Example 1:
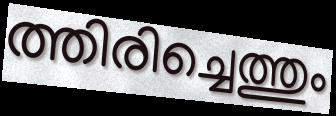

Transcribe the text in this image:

ത്തിരിച്ചെത്തും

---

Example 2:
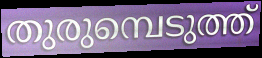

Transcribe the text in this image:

തുരുമ്പെടുത്ത്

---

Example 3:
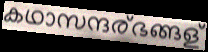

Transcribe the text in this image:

കഥാസന്ദര്ഭങ്ങള്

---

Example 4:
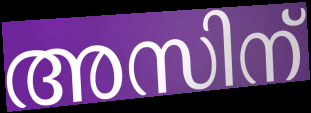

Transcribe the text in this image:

അസിന്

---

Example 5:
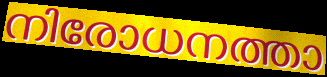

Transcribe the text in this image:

നിരോധനത്താ